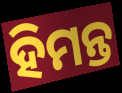
ହିମନ୍ତ